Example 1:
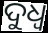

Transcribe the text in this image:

ଦୁଧ୍ଵ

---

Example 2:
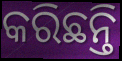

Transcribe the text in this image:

କରିଛନ୍ତି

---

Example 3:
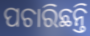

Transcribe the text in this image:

ପଚାରିଛନ୍ତି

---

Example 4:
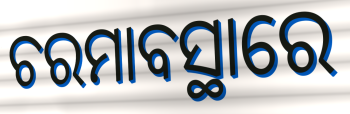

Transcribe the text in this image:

ଚରମାବସ୍ଥାରେ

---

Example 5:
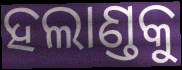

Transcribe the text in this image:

ହଲାଣ୍ଡକୁ